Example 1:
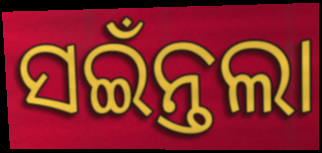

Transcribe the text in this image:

ସଇଁନ୍ତଲା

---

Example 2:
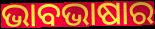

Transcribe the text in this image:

ଭାବଭାଷାର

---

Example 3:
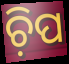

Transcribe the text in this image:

ଚ଼ିପ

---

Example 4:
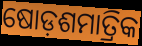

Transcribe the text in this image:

ଷୋଡ଼ଶମାତ୍ରିକ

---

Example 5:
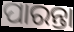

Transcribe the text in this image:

ପାରନ୍ତା